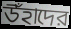
উঁহাদের